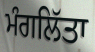
ਮੰਗਲਿੱਤਾ